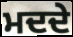
ਮਦਦੇ